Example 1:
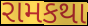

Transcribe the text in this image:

રામકથા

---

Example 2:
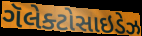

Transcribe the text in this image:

ગૅલેક્ટોસાઇડેઝ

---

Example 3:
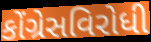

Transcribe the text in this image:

કોંગ્રેસવિરોધી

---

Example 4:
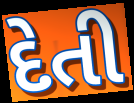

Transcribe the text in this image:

દેતી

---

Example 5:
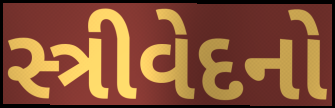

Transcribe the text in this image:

સ્ત્રીવેદનો